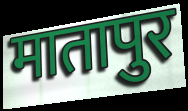
मातापुर